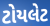
ટોયલેટ